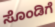
ಸೊಂಡಿಗೆ